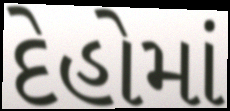
દેહોમાં